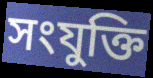
সংযুক্তি